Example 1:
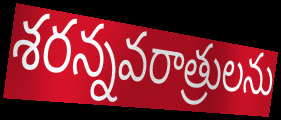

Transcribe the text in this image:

శరన్నవరాత్రులను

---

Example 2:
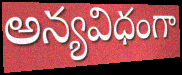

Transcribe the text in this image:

అన్యవిధంగా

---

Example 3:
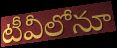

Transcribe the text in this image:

టీవీలోనూ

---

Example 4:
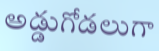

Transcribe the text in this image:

అడ్డుగోడలుగా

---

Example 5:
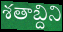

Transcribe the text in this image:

శతాబ్దిని